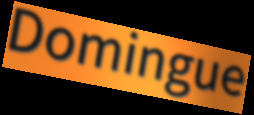
Domingue